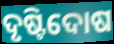
ଦୃଷ୍ଟିଦୋଷ